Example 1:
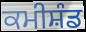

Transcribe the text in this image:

ਕਮੀਸ਼ੰਡ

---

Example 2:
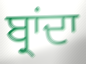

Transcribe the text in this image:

ਬ੍ਰਾਂਦਾ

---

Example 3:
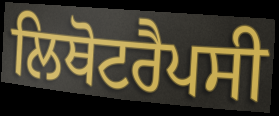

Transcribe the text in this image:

ਲਿਥੋਟਰੈਪਸੀ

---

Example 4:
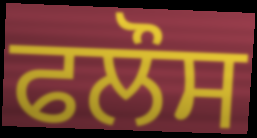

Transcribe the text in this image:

ਫਲੌਸ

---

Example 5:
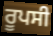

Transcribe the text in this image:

ਰੂਪਸੀ